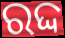
ରଦ୍ଦ